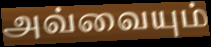
அவ்வையும்